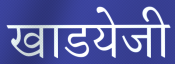
खाडयेजी